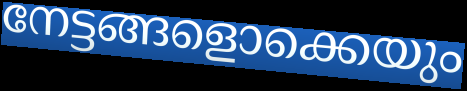
നേട്ടങ്ങളൊക്കെയും